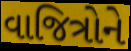
વાજિત્રોને